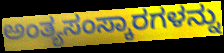
ಅಂತ್ಯಸಂಸ್ಕಾರಗಳನ್ನು